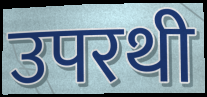
उपरथी